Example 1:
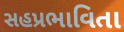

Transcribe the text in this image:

સહપ્રભાવિતા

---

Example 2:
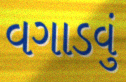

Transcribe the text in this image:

વગાડવું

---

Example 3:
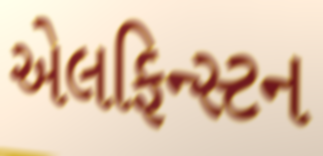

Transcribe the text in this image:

એલફિન્સ્ટન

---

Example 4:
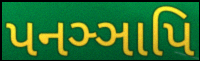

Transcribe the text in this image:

પનઞ્ઞાપિ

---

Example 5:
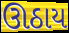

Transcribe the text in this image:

ઊઠાય